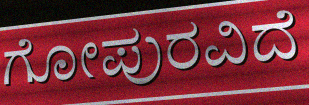
ಗೋಪುರವಿದೆ